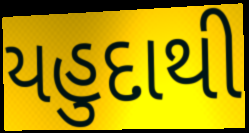
યહુદાથી